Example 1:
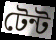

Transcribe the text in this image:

টেন্ট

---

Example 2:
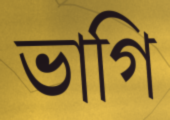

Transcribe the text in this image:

ভাগি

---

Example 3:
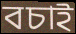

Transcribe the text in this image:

বচাই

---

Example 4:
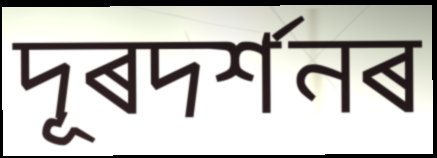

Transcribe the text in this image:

দূৰদৰ্শনৰ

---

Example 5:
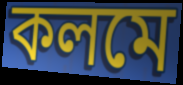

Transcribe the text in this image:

কলমে